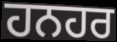
ਹਨਹਰ